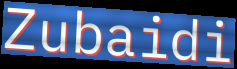
Zubaidi